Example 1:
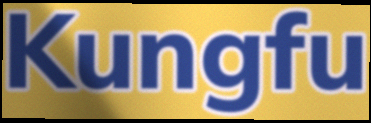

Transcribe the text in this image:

Kungfu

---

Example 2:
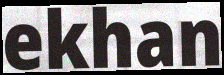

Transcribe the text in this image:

ekhan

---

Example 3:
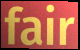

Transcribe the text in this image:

fair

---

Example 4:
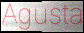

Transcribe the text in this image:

Agusta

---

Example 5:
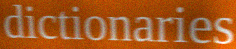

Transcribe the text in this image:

dictionaries